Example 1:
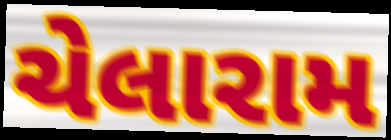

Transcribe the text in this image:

ચેલારામ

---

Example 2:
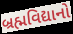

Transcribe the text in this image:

બ્રહ્મવિદ્યાનો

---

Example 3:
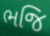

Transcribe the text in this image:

ભજિ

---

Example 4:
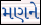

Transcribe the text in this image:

મણને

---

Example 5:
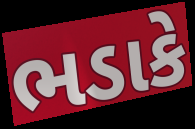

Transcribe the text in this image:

ભડાકે